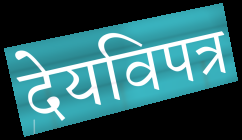
देयविपत्र